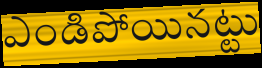
ఎండిపోయినట్టు